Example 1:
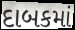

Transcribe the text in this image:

દાબકમાં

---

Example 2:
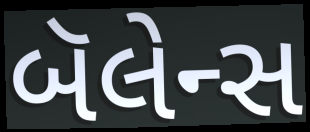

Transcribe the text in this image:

બૅલેન્સ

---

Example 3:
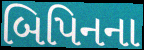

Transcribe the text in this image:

બિપિનના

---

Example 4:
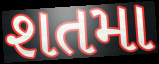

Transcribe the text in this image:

શતમા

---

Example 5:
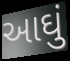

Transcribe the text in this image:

આઘું